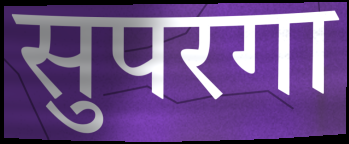
सुपरगा